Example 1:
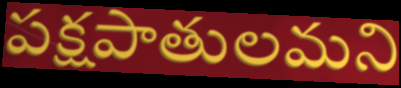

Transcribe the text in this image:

పక్షపాతులమని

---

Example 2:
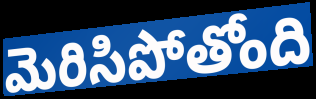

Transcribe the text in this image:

మెరిసిపోతోంది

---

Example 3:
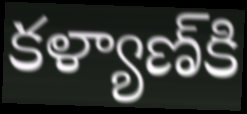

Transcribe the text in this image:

కళ్యాణ్‍కి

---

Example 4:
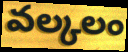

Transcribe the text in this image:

వల్కలం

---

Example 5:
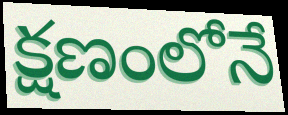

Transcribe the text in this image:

క్షణంలోనే